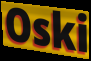
Oski